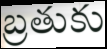
బ్రతుకు